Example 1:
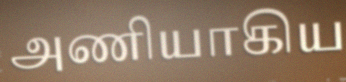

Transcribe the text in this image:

அணியாகிய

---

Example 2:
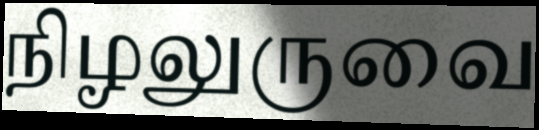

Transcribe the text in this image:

நிழலுருவை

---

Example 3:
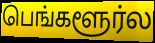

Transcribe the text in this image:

பெங்களூர்ல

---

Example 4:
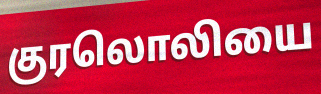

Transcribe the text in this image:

குரலொலியை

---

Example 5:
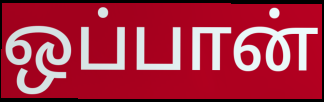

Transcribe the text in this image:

ஒப்பான்